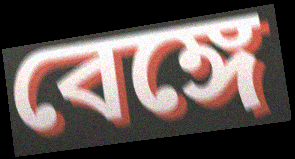
বেঙ্গে